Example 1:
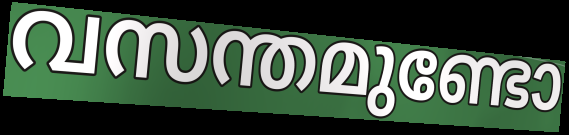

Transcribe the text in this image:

വസന്തമുണ്ടോ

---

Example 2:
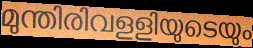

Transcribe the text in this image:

മുന്തിരിവളളിയുടെയും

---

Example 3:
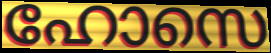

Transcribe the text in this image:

ഹോസെ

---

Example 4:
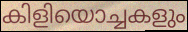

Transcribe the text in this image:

കിളിയൊച്ചകളും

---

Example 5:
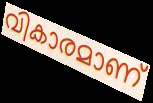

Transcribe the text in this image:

വികാരമാണ്